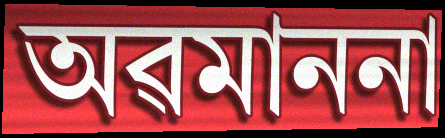
অৱমাননা